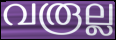
വരൂല്ല